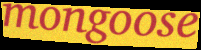
mongoose